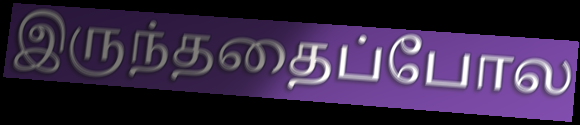
இருந்ததைப்போல